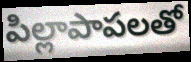
పిల్లాపాపలతో